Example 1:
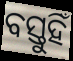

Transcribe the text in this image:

ବସ୍ତୁହିଁ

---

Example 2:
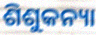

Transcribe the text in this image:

ଶିଶୁକନ୍ୟା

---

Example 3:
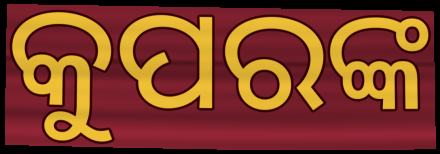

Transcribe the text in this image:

କୁପରଙ୍କ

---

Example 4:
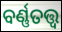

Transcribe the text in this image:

ବର୍ଣ୍ଣତତ୍ତ୍ଵ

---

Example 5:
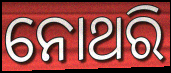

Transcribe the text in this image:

ନୋଥରି